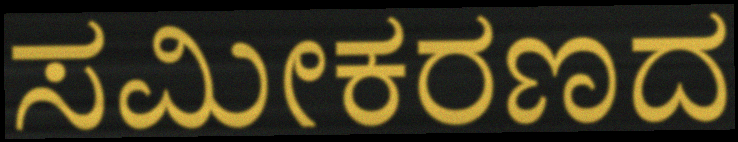
ಸಮೀಕರಣದ